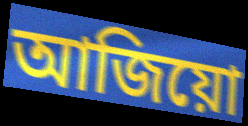
আজিয়ো